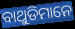
ବାଥୁଡିମାନେ